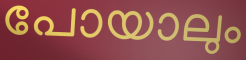
പോയാലും